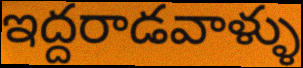
ఇద్దరాడవాళ్ళు